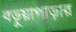
বড়ুয়াপাড়ার